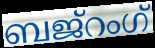
ബജ്റംഗ്